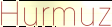
Hurmuz